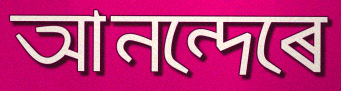
আনন্দেৰে